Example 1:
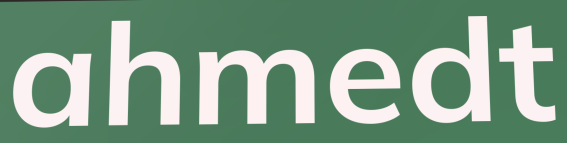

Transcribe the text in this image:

ahmedt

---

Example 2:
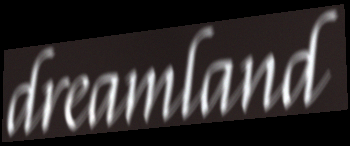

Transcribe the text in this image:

dreamland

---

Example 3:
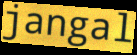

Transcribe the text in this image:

jangal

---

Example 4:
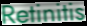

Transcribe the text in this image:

Retinitis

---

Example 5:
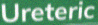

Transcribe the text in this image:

Ureteric